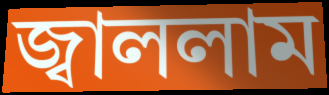
জ্বাললাম